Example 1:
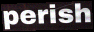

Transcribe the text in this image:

perish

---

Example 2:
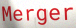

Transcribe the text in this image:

Merger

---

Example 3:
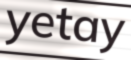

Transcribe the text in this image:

yetay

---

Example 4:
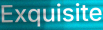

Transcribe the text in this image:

Exquisite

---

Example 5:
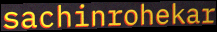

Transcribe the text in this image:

sachinrohekar